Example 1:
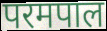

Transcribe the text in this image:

परमपाल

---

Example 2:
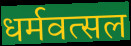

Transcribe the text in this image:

धर्मवत्सल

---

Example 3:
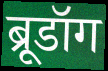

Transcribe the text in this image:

ब्रूडॉग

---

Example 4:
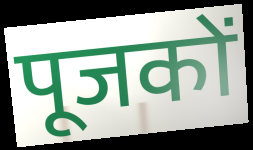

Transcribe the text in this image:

पूजकों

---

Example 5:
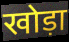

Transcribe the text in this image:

खोड़ा